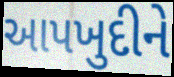
આપખુદીને